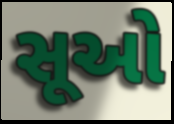
સૂઓ